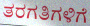
ತರಗತಿಗಳಿಗೆ